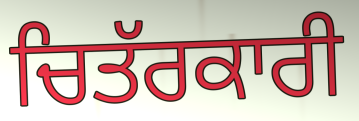
ਚਿਤੱਰਕਾਰੀ